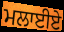
ਮਲਾਈਏ